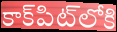
కాక్‌పిట్‌లోకి